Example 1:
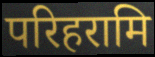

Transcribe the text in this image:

परिहरामि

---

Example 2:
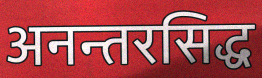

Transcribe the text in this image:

अनन्तरसिद्ध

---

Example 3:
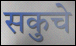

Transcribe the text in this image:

सकुचे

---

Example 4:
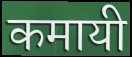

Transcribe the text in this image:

कमायी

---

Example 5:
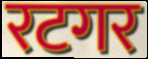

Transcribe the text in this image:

रटगर